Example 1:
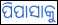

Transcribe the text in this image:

ପିପାସାକୁ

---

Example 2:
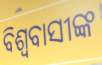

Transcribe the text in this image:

ବିଶ୍ଵବାସୀଙ୍କ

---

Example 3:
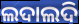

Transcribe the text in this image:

ଲଦାଲଦି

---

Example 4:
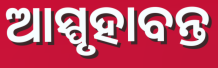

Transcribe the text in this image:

ଆସ୍ପୃହାବନ୍ତ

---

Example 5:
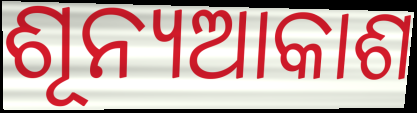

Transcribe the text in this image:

ଶୂନ୍ୟଆକାଶ